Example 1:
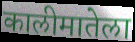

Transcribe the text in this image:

कालीमातेला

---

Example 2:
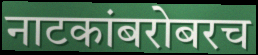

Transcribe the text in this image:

नाटकांबरोबरच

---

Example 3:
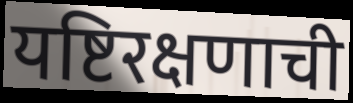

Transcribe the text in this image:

यष्टिरक्षणाची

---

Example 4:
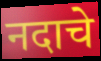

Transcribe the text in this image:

नदाचे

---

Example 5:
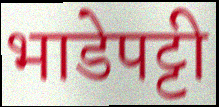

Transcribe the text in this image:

भाडेपट्टी